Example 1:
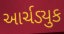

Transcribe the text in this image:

આર્ચડ્યુક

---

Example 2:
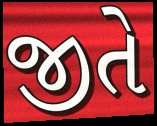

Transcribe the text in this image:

જીતે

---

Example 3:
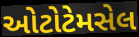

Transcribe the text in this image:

ઓટોટેમસેલ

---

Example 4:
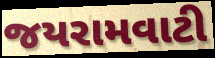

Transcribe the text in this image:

જયરામવાટી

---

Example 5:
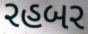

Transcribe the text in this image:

રહબર